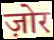
ज़ोर